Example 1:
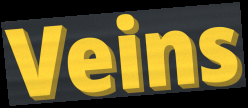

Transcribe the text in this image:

Veins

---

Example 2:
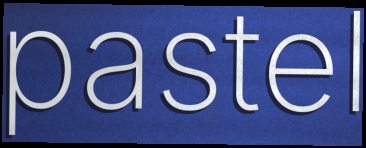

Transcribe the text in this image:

pastel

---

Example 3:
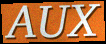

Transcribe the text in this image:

AUX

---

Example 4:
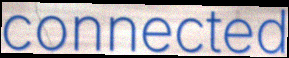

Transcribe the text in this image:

connected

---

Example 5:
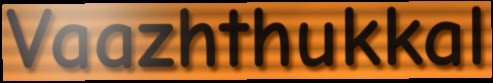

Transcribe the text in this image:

Vaazhthukkal